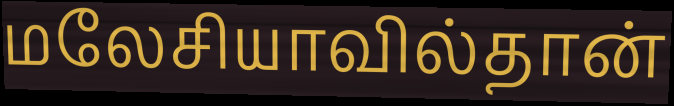
மலேசியாவில்தான்